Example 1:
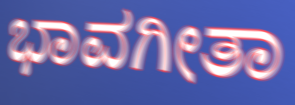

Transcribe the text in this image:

ಭಾವಗೀತಾ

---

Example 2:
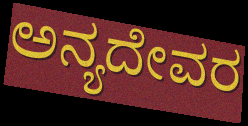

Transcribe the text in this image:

ಅನ್ಯದೇವರ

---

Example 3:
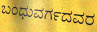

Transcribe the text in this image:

ಬಂಧುವರ್ಗದವರ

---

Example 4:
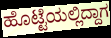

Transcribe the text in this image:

ಹೊಟ್ಟೆಯಲ್ಲಿದ್ದಾಗ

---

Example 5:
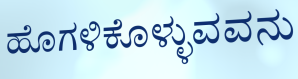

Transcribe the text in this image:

ಹೊಗಳಿಕೊಳ್ಳುವವನು